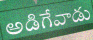
అడిగేవాడు